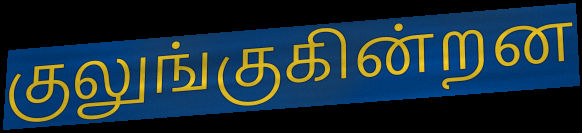
குலுங்குகின்றன